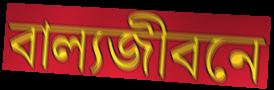
বাল্যজীবনে